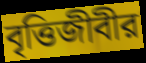
বৃত্তিজীবীর